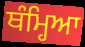
ਥੰਮ੍ਹਿਆ